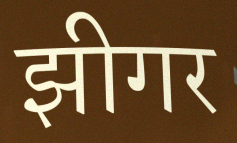
झीगर